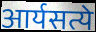
आर्यसत्ये